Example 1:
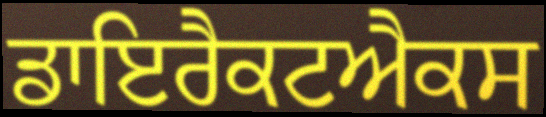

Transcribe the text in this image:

ਡਾਇਰੈਕਟਐਕਸ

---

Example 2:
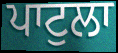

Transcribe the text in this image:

ਪਾਟੁਲਾ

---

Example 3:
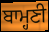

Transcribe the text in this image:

ਬਾਮ੍ਹਣੀ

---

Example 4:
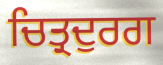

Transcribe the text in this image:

ਚਿਤ੍ਰਦੁਰਗ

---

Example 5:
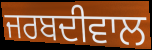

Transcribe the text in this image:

ਜਰਬਦੀਵਾਲ